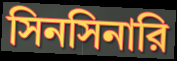
সিনসিনারি